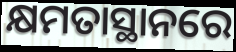
କ୍ଷମତାସ୍ଥାନରେ